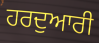
ਹਰਦੁਆਰੀ